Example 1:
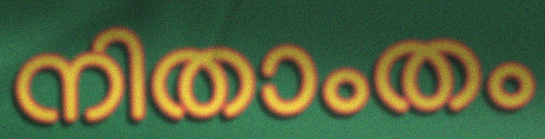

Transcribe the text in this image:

നിതാംതം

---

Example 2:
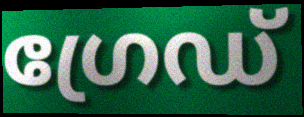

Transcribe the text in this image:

ഗ്രേഡ്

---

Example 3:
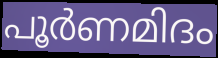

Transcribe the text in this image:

പൂർണമിദം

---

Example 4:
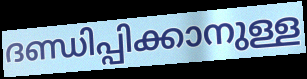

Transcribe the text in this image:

ദണ്ഡിപ്പിക്കാനുള്ള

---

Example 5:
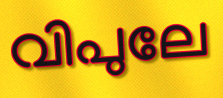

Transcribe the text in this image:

വിപുലേ